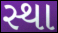
સ્થા